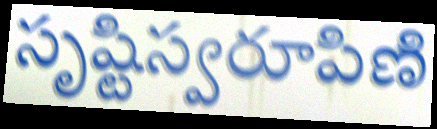
సృష్టిస్వరూపిణి